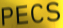
PECS